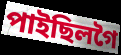
পাইছিলগৈ